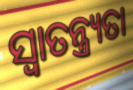
ସ୍ୱାତନ୍ତ୍ର୍ୟତା